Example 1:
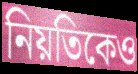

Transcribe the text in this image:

নিয়তিকেও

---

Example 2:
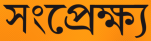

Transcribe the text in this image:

সংপ্রেক্ষ্য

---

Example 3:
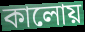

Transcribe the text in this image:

কালোয়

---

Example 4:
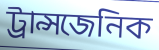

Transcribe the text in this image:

ট্রান্সজেনিক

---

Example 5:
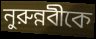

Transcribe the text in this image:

নুরুন্নবীকে